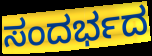
ಸಂದರ್ಭದ